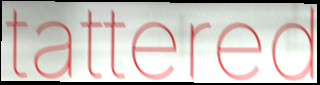
tattered